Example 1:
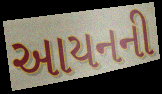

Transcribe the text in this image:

આયનની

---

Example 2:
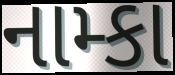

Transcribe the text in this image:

નામ્કા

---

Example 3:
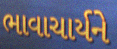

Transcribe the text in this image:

ભાવાચાર્યને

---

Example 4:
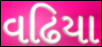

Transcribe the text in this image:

વઢિયા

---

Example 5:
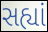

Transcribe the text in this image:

સહ્યાં